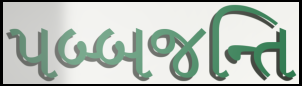
પબ્બજન્તિ